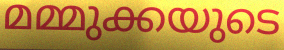
മമ്മുക്കയുടെ